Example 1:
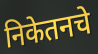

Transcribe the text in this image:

निकेतनचे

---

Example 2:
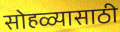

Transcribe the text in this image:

सोहळ्यासाठी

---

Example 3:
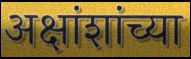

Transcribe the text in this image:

अक्षांशांच्या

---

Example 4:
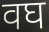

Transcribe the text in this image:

वघ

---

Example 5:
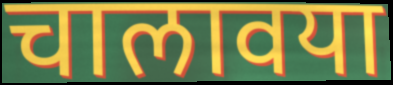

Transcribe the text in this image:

चालावया